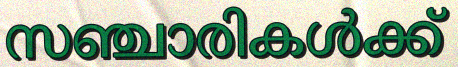
സഞ്ചാരികൾക്ക്